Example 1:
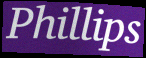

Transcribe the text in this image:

Phillips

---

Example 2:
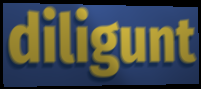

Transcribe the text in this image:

diligunt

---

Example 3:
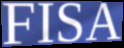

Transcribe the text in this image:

FISA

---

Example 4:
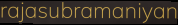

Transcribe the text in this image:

rajasubramaniyan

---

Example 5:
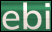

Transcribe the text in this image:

ebi